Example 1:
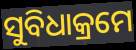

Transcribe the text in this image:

ସୁବିଧାକ୍ରମେ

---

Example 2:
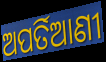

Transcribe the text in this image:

ଅପର୍ତିଆଣୀ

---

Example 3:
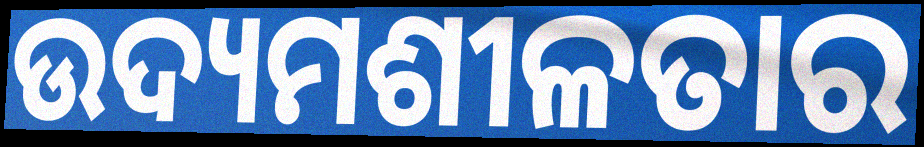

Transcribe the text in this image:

ଉଦ୍ୟମଶୀଳତାର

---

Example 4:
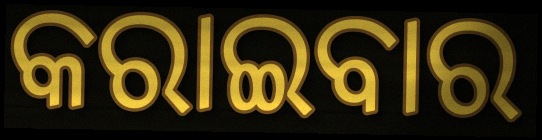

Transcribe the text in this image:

କରାଇବାର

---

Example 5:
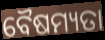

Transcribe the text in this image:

ବୈଷମ୍ୟତା